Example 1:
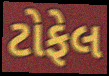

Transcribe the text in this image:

ટોફેલ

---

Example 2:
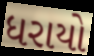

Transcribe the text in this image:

ધરાયો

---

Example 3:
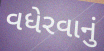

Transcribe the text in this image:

વધેરવાનું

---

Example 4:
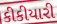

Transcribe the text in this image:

કીકીયારી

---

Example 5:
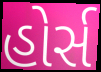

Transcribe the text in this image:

હોર્સ